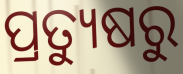
ପ୍ରତ୍ୟୁଷରୁ